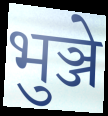
भुञ्जे